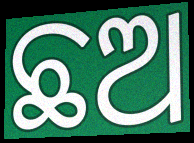
ଛଅ